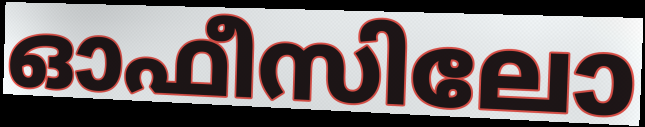
ഓഫീസിലോ